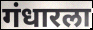
गंधारला